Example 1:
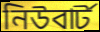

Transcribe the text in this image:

নিউবার্ট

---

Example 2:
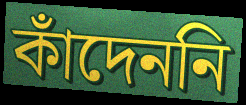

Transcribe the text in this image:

কাঁদেননি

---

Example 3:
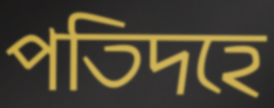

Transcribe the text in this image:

পতিদহে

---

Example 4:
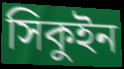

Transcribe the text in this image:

সিকুইন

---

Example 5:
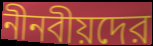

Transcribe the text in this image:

নীনবীয়দের